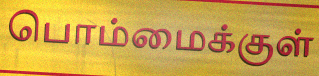
பொம்மைக்குள்